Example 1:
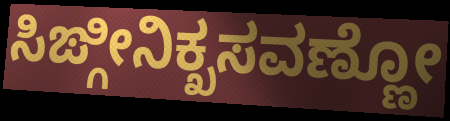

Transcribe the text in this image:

ಸಿಙ್ಗೀನಿಕ್ಖಸವಣ್ಣೋ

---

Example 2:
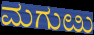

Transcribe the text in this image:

ಮಗುೞು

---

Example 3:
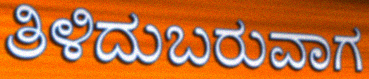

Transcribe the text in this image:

ತಿಳಿದುಬರುವಾಗ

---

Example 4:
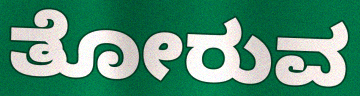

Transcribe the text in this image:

ತೋರುವ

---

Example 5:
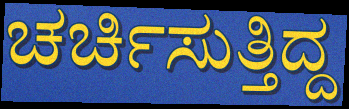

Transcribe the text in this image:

ಚರ್ಚಿಸುತ್ತಿದ್ದ